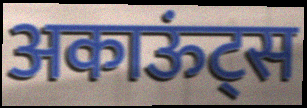
अकाऊंट्स